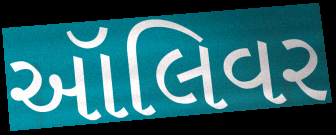
ઑલિવર